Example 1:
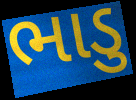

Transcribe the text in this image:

ભાડુ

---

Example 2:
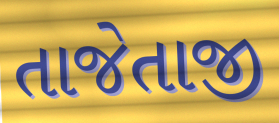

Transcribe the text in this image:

તાજેતાજી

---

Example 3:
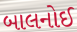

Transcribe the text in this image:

બાલનોઈ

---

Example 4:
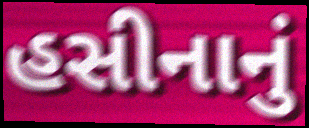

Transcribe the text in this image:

હસીનાનું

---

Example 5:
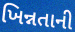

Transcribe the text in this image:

ખિન્નતાની